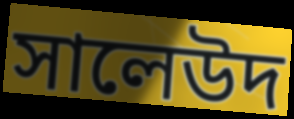
সালেউদ